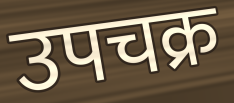
उपचक्र